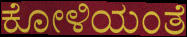
ಕೋಳಿಯಂತೆ